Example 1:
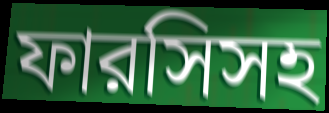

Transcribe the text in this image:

ফারসিসহ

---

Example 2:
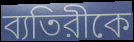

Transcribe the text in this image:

ব্যতিরীকে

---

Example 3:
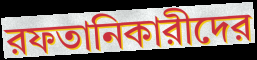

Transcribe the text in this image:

রফতানিকারীদের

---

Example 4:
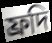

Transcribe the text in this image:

ফ্রদি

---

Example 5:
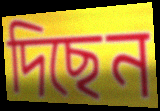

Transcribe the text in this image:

দিছেন